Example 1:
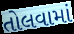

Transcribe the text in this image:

તોલવામાં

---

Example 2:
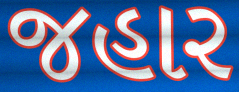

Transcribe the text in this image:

જહાર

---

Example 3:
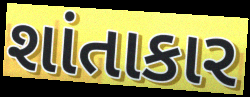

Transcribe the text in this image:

શાંતાકાર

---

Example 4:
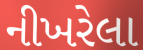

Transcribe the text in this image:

નીખરેલા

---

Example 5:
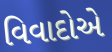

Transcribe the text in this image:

વિવાદોએ